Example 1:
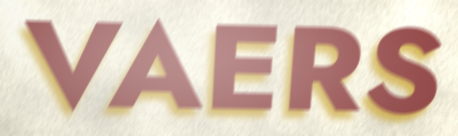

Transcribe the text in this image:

VAERS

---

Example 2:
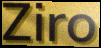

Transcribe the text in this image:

Ziro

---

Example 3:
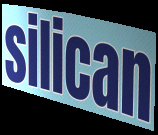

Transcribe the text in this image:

silican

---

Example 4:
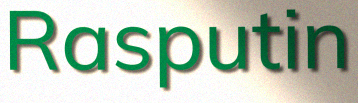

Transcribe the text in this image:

Rasputin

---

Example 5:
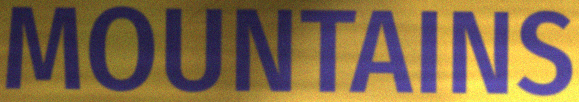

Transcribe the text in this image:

MOUNTAINS